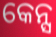
କେନ୍ସ